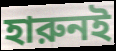
হারুনই